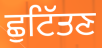
ਛੁਟਿੱਤਣ